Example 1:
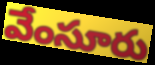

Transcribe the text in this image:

వేంసూరు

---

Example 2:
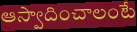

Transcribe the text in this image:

ఆస్వాదించాలంటే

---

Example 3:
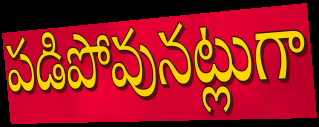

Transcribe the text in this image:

పడిపోవునట్లుగా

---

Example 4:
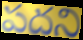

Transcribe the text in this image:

పదని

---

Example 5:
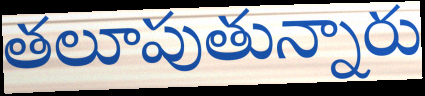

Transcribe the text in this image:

తలూపుతున్నారు